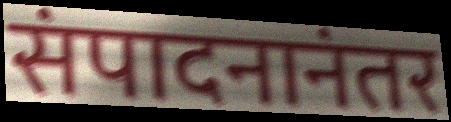
संपादनानंतर